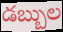
డబ్బుల